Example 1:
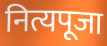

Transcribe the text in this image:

नित्यपूजा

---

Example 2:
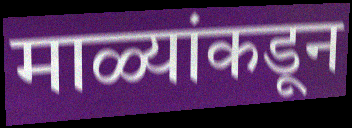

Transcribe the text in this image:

माळ्यांकडून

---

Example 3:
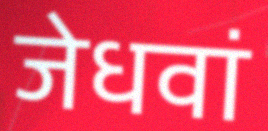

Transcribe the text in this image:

जेधवां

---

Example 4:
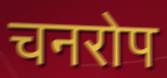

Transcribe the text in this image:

चनरोप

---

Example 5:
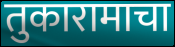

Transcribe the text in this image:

तुकारामाचा